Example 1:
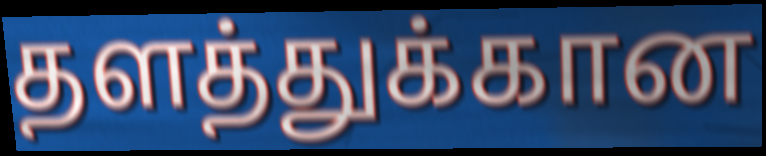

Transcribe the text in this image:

தளத்துக்கான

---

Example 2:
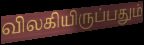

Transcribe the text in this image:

விலகியிருப்பதும்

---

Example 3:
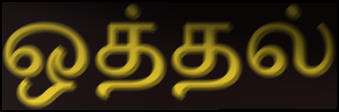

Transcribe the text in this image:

ஒத்தல்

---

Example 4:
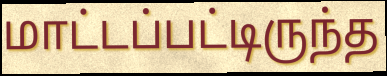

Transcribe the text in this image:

மாட்டப்பட்டிருந்த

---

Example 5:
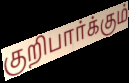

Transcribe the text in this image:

குறிபார்க்கும்